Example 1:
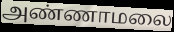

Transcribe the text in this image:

அண்ணாமலை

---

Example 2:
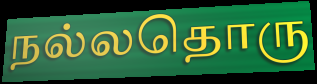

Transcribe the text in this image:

நல்லதொரு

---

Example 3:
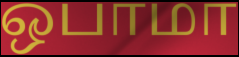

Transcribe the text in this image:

ஒபாமா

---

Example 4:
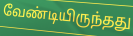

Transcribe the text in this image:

வேண்டியிருந்தது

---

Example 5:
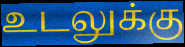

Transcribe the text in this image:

உடலுக்கு